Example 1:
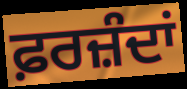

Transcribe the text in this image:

ਫ਼ਰਜ਼ੰਦਾਂ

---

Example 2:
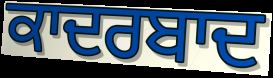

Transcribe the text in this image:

ਕਾਦਰਬਾਦ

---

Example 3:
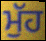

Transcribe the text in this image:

ਮੁੱਹ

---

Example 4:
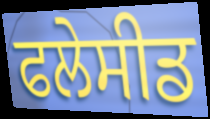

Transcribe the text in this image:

ਫਲੇਸੀਡ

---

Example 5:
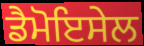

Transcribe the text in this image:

ਡੈਮੋਇਸੇਲ